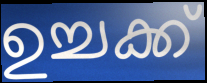
ഉച്ചക്ക്